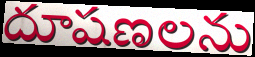
దూషణలను